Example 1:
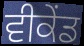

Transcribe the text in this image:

ਵੀਕੇਂਡ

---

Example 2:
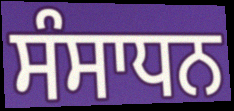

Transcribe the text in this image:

ਸੰਸਾਧਨ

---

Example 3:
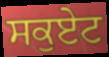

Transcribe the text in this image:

ਸਕੁਏਟ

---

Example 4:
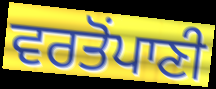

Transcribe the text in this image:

ਵਰਤੋਂਪਾਣੀ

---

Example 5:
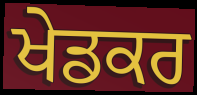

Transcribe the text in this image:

ਖੇਡਕਰ